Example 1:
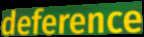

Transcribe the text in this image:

deference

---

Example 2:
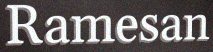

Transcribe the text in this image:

Ramesan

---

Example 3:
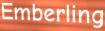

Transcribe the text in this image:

Emberling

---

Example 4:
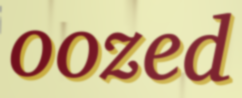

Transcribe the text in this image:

oozed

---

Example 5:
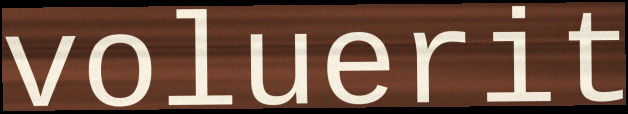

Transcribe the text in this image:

voluerit